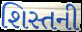
શિસ્તની